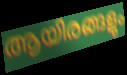
ആയിരങ്ങളും